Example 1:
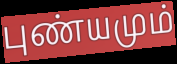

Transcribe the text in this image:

புண்யமும்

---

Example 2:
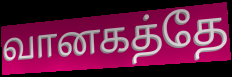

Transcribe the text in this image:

வானகத்தே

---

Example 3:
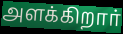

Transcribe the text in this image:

அளக்கிறார்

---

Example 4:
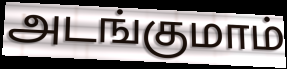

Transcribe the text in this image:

அடங்குமாம்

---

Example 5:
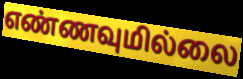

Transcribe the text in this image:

எண்ணவுமில்லை